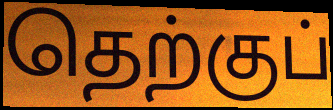
தெற்குப்